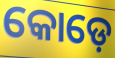
କୋଡ଼େ